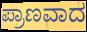
ಪ್ರಾಣವಾದ